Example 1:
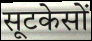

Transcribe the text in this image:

सूटकेसों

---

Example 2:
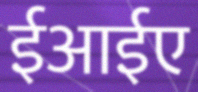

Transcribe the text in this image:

ईआईए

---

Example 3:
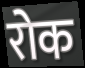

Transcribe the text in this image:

रोक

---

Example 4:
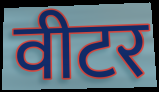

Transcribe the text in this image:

वीटर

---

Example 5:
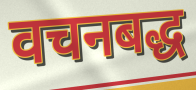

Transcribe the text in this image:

वचनबद्ध